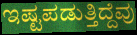
ಇಷ್ಟಪಡುತ್ತಿದ್ದೆವು